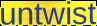
untwist